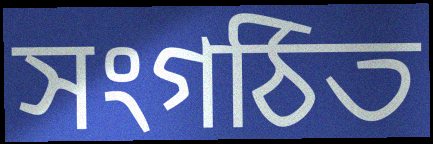
সংগঠিত